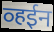
व्हईन